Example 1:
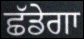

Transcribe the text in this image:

ਛੱਡੇਗਾ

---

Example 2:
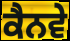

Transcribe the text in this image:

ਕੈਨਵੇ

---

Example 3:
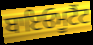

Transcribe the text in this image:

ਬਾਇਓਮੂਟੈਂਟ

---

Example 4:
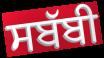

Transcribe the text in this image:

ਸਬੱਬੀ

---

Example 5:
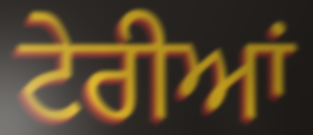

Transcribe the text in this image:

ਟੇਰੀਆਂ